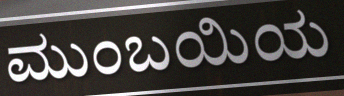
ಮುಂಬಯಿಯ